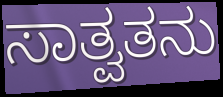
ಸಾತ್ವತನು